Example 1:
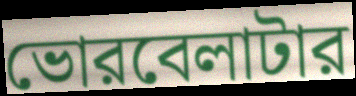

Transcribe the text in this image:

ভোরবেলাটার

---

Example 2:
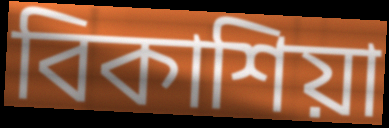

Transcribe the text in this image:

বিকাশিয়া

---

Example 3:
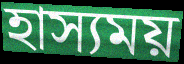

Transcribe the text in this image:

হাস্যময়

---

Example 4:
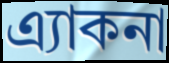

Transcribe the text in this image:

এ্যাকনা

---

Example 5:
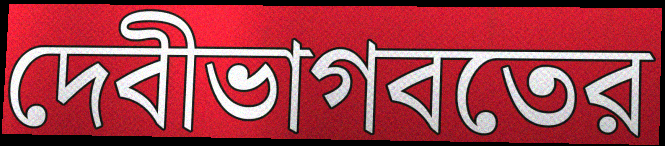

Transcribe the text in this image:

দেবীভাগবতের